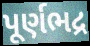
પૂર્ણભદ્ર